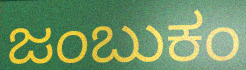
ಜಂಬುಕಂ